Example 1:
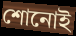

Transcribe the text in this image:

শোনোই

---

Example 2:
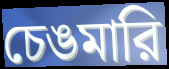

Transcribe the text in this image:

চেঙমারি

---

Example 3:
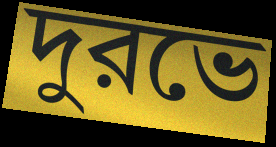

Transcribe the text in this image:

দুরভে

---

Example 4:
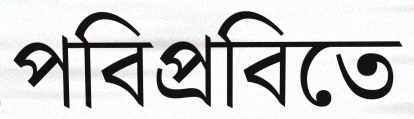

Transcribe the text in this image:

পবিপ্রবিতে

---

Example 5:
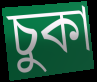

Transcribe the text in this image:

চুকা